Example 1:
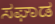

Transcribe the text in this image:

ಸಘಾಡ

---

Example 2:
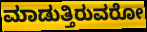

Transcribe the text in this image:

ಮಾಡುತ್ತಿರುವರೋ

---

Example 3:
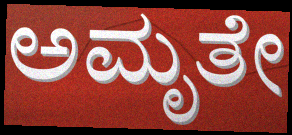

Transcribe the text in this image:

ಅಮೃತೇ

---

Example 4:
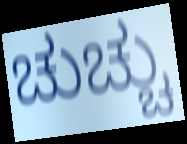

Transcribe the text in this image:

ಚುಚ್ಚು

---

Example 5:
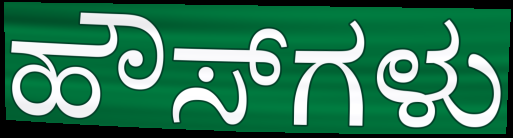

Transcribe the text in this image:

ಹೌಸ್‌ಗಳು